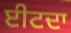
ਈਟਦਾ